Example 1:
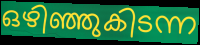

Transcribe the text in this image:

ഒഴിഞ്ഞുകിടന്ന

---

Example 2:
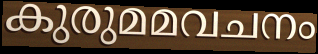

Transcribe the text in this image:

കുരുമമവചനം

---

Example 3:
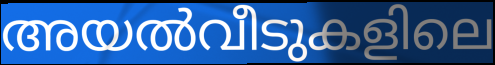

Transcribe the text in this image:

അയൽവീടുകളിലെ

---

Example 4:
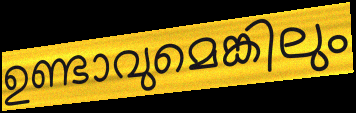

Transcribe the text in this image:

ഉണ്ടാവുമെങ്കിലും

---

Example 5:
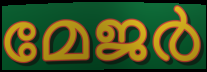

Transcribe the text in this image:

മേജർ